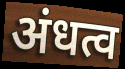
अंधत्व